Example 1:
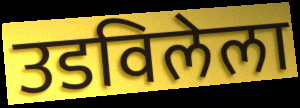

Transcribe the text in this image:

उडविलेला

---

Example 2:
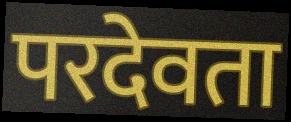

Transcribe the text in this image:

परदेवता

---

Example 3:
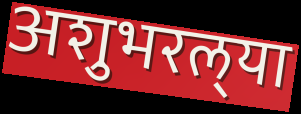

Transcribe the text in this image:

अश्रुभरल्या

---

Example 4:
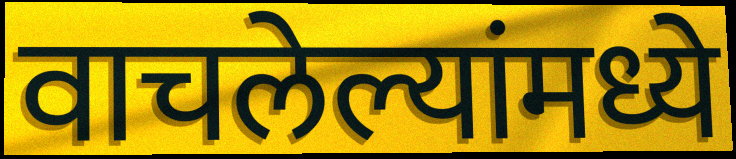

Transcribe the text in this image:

वाचलेल्यांमध्ये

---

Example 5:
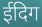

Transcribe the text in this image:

ईदिग